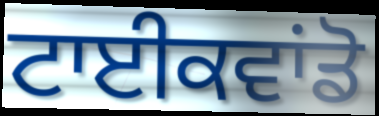
ਟਾਈਕਵਾਂਡੋ